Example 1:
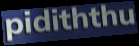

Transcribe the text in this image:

pidiththu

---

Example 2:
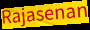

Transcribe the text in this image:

Rajasenan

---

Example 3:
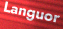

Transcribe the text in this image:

Languor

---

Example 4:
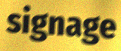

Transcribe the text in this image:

signage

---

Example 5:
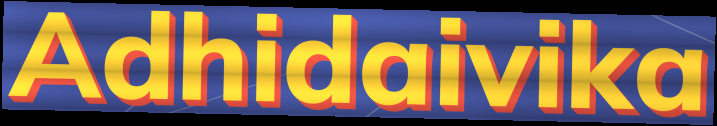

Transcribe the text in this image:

Adhidaivika